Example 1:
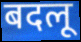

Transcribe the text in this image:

बदलू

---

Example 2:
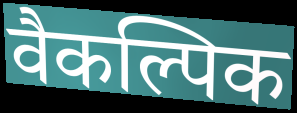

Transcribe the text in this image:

वैकल्पिक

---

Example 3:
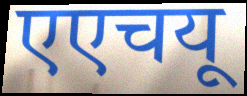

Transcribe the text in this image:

एएचयू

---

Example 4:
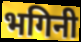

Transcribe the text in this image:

भगिनी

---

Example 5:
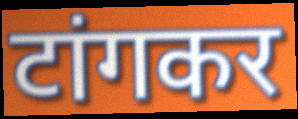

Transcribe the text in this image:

टांगकर